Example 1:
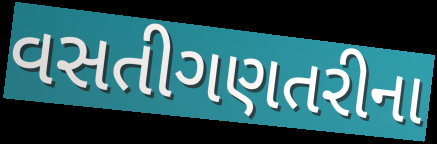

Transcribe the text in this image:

વસતીગણતરીના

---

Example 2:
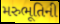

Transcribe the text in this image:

મરુભૂતિની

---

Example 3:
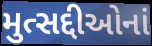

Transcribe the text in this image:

મુત્સદ્દીઓનાં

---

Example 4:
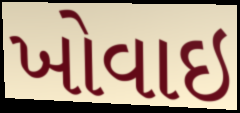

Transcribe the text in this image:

ખોવાઇ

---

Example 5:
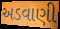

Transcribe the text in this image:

અડવાણી